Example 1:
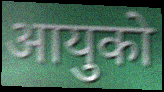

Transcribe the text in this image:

आयुको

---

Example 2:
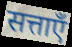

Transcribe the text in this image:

सत्ताएँ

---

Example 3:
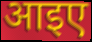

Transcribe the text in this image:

आइए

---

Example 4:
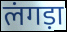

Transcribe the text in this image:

लंगड़ा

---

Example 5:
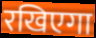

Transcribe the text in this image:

रखिएगा